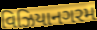
વિઝિયાનગરમ